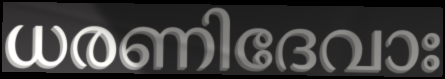
ധരണിദേവാഃ